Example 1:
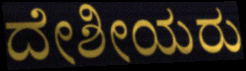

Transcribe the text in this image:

ದೇಶೀಯರು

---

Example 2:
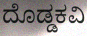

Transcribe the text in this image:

ದೊಡ್ಡಕವಿ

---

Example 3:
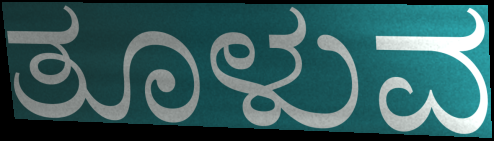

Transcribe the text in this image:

ತೂಳುವ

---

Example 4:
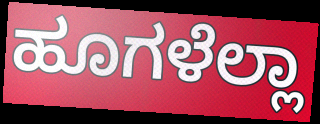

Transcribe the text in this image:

ಹೂಗಳೆಲ್ಲಾ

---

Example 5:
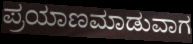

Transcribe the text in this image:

ಪ್ರಯಾಣಮಾಡುವಾಗ